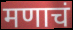
मणाचं